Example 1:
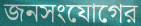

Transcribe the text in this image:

জনসংযোগের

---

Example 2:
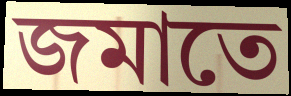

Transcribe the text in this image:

জমাতে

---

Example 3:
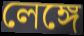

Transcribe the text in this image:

লেঙ্গে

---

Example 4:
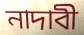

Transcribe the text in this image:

নাদাবী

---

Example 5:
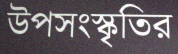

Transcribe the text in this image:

উপসংস্কৃতির